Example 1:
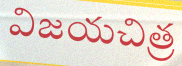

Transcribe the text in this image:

విజయచిత్ర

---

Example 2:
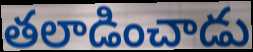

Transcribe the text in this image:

తలాడించాడు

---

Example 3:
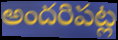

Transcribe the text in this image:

అందరిపట్ల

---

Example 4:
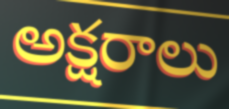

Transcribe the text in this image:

అక్షరాలు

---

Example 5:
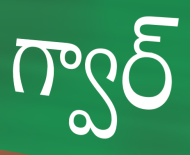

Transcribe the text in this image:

గ్వార్